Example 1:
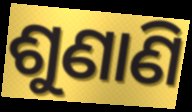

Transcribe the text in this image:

ଶୁଣାଣି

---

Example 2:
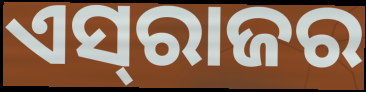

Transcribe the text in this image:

ଏସ୍‍ରାଜର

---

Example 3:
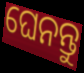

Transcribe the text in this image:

ଘେନନ୍ତୁ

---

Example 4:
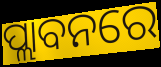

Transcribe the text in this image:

ପ୍ଲାବନରେ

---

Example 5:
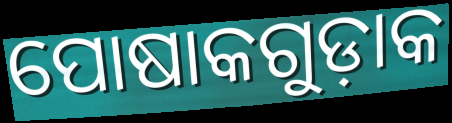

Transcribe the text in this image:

ପୋଷାକଗୁଡ଼ାକ